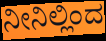
ನೀನಿಲ್ಲಿಂದ